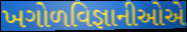
ખગોળવિજ્ઞાનીઓએ